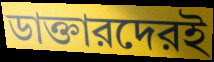
ডাক্তারদেরই